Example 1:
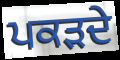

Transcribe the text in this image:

ਪਕੜਦੇ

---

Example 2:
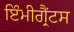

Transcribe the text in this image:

ਇੰਮੀਗ੍ਰੈਂਟਸ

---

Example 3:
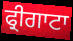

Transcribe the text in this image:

ਫ੍ਰੀਗਾਟਾ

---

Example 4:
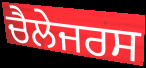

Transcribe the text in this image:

ਚੈਲੇਜਰਸ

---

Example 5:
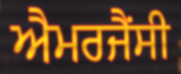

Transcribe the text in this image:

ਐਮਰਜੈਂਸੀ